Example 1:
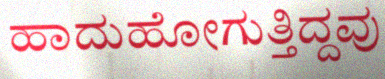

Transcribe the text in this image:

ಹಾದುಹೋಗುತ್ತಿದ್ದವು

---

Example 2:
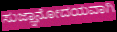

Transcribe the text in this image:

ಸುಜ್ಞಾನೋದಯವಾಗಿ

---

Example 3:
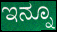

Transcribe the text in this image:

ಇನ್ನೂ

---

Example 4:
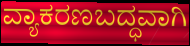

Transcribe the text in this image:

ವ್ಯಾಕರಣಬದ್ಧವಾಗಿ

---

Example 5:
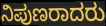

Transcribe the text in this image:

ನಿಪುಣರಾದರು